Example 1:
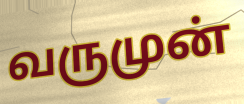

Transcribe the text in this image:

வருமுன்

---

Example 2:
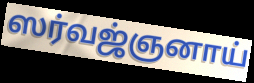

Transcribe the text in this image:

ஸர்வஜ்ஞனாய்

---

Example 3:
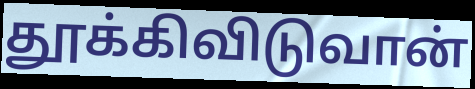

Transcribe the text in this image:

தூக்கிவிடுவான்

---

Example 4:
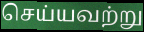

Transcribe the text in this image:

செய்யவற்று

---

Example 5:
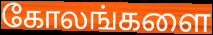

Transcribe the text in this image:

கோலங்களை